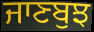
ਜਾਣਬੁਝ